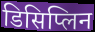
डिसिप्लिन